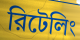
রিটেলিং